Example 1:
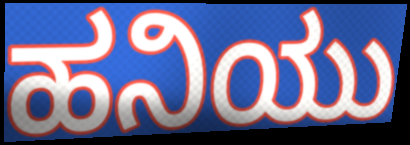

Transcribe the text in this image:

ಹನಿಯು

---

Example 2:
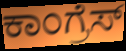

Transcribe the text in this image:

ಕಾಂಗ್ರೆಸ್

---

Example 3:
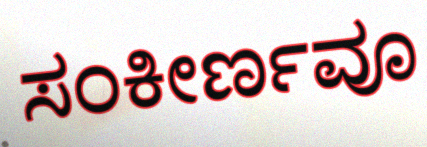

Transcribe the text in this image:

ಸಂಕೀರ್ಣವೂ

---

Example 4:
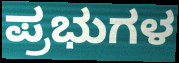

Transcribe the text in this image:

ಪ್ರಭುಗಳ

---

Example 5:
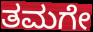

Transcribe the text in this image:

ತಮಗೇ